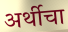
अर्थीचा